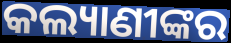
କଲ୍ୟାଣୀଙ୍କର